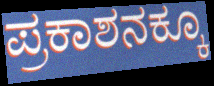
ಪ್ರಕಾಶನಕ್ಕೂ